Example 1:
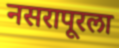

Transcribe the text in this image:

नसरापूरला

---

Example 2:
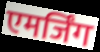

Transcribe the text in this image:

एमर्जिंग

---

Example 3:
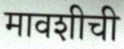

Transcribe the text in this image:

मावशीची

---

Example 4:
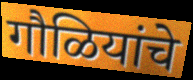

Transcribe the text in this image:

गौळियांचे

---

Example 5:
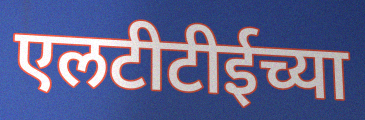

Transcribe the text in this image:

एलटीटीईच्या